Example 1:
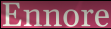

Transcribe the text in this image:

Ennore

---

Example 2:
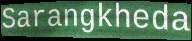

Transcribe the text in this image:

Sarangkheda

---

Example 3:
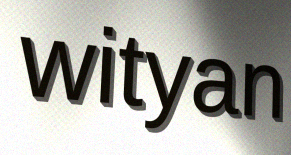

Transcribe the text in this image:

wityan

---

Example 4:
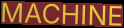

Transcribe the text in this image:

MACHINE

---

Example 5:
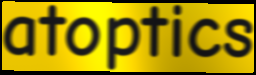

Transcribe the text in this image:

atoptics